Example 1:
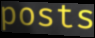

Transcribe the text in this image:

posts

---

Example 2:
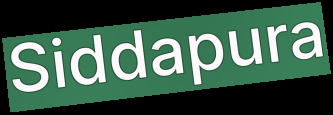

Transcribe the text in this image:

Siddapura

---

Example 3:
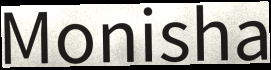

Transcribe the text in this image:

Monisha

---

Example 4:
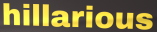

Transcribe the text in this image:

hillarious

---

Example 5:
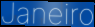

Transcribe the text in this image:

Janeiro